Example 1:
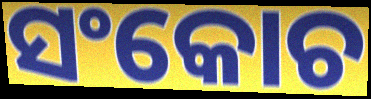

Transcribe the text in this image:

ସଂକୋଚ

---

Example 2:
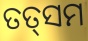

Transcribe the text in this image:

ତତ୍‌ସମ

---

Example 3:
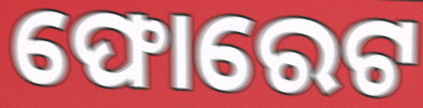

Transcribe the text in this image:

ଫୋରେଟ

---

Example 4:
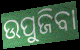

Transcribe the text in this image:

ଉପୁଜିବା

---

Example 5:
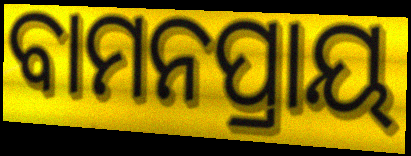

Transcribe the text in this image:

ବାମନପ୍ରାୟ